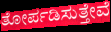
ತೋರ್ಪಡಿಸುತ್ತೇವೆ